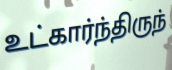
உட்கார்ந்திருந்